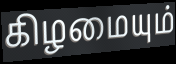
கிழமையும்